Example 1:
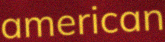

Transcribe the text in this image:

american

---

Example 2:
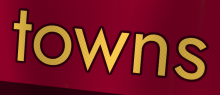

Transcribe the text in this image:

towns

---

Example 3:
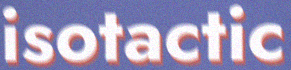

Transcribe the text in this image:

isotactic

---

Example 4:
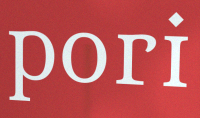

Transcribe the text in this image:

pori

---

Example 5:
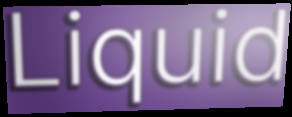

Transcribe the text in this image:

Liquid